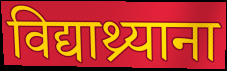
विद्याथ्र्याना